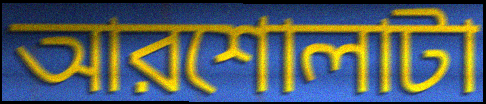
আরশোলাটা